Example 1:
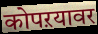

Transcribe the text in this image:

कोपऱयावर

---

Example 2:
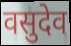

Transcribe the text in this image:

वसुदेव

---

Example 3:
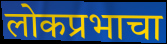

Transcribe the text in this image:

लोकप्रभाचा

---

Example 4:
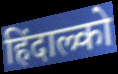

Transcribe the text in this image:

हिंदाल्को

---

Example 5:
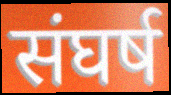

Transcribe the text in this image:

संघर्ष